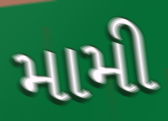
મામી